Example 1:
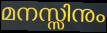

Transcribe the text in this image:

മനസ്സിനും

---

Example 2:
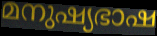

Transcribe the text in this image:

മനുഷ്യഭാഷ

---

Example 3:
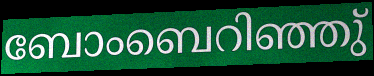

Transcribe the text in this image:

ബോംബെറിഞ്ഞു്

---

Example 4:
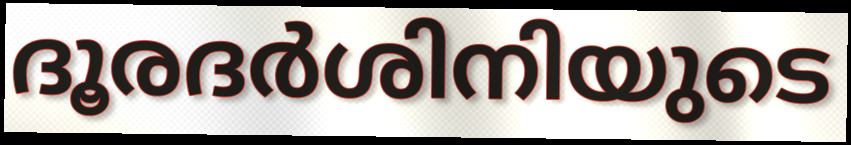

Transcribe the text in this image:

ദൂരദർശിനിയുടെ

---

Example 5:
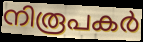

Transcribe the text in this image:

നിരൂപകർ